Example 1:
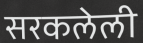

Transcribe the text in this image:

सरकलेली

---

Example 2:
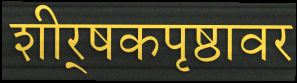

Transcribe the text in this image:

शीर्षकपृष्ठावर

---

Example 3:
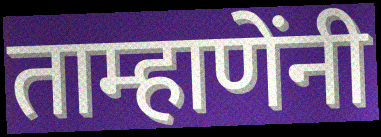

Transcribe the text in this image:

ताम्हाणेंनी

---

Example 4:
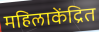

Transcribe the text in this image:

महिलाकेंद्रित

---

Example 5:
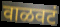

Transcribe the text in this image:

वाळवटं